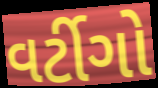
વર્ટીગો